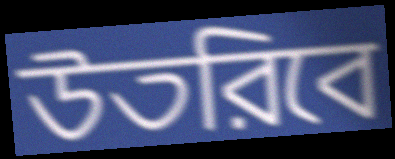
উতরিবে